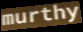
murthy